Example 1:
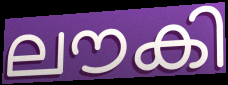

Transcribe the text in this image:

ലൗകി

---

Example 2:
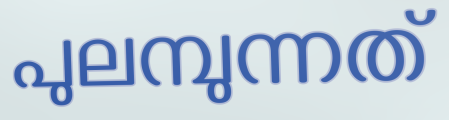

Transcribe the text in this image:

പുലമ്പുന്നത്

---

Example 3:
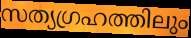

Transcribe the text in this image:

സത്യഗ്രഹത്തിലും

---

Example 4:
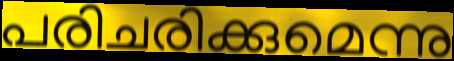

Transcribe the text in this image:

പരിചരിക്കുമെന്നു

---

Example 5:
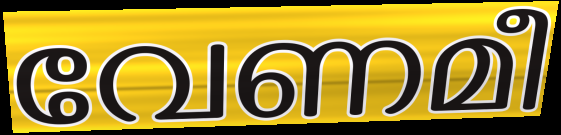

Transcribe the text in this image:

വേണമീ